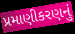
પ્રમાણીકરણનું